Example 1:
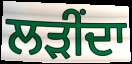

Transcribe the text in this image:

ਲੜੀਂਦਾ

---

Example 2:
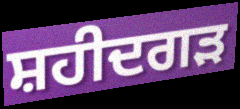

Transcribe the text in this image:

ਸ਼ਹੀਦਗੜ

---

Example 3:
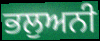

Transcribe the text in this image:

ਭਲੁਅਨੀ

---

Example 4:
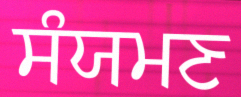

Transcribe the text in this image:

ਸੰਯਮਣ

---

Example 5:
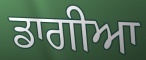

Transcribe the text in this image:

ਡਾਗੀਆ